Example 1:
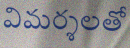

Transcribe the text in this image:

విమర్శలతో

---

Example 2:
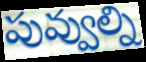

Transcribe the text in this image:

పువ్వుల్ని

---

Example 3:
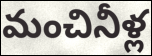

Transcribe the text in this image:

మంచినీళ్ల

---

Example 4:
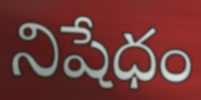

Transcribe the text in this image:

నిషేధం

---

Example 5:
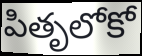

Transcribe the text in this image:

పితృలోకో